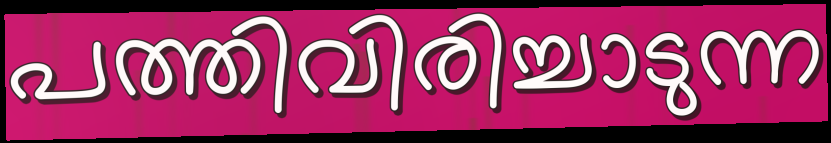
പത്തിവിരിച്ചാടുന്ന